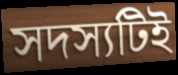
সদস্যটিই